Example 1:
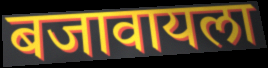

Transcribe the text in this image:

बजावायला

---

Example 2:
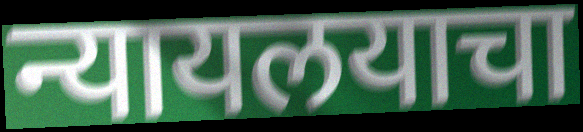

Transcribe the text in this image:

न्यायलयाचा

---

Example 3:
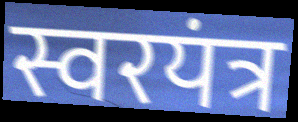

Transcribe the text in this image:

स्वरयंत्र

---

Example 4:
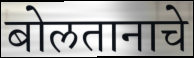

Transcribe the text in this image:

बोलतानाचे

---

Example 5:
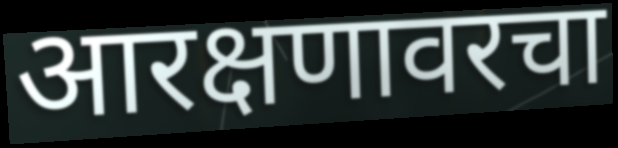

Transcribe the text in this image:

आरक्षणावरचा